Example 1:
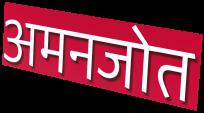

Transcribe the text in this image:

अमनजोत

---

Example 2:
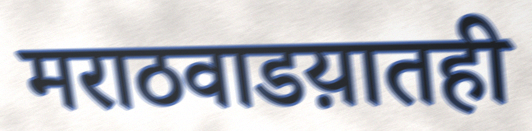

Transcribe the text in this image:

मराठवाडय़ातही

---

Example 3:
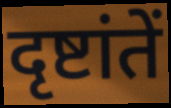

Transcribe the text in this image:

दृष्टांतें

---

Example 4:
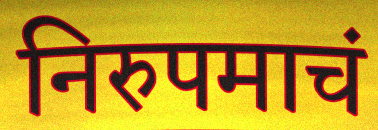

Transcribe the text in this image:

निरुपमाचं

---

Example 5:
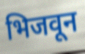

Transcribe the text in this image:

भिजवून